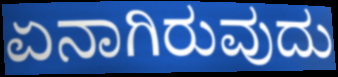
ಏನಾಗಿರುವುದು